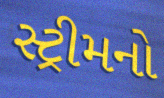
સ્ટ્રીમનો